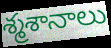
శ్మశానాలు